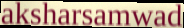
aksharsamwad